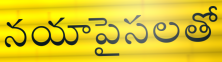
నయాపైసలతో